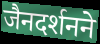
जैनदर्शनने